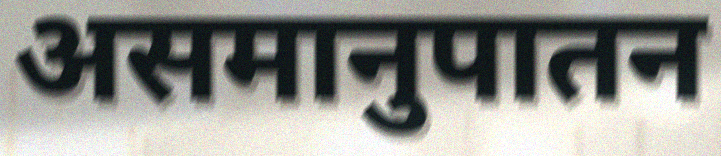
असमानुपातन